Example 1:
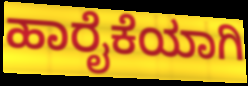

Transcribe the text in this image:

ಹಾರೈಕೆಯಾಗಿ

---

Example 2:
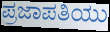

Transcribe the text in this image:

ಪ್ರಜಾಪತಿಯು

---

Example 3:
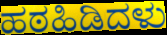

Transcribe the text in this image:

ಹಠಹಿಡಿದಳು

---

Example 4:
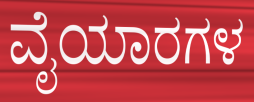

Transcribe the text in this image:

ವೈಯಾರಗಳ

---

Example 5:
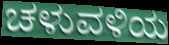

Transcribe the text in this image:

ಚಳುವಳಿಯ